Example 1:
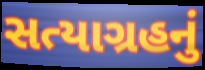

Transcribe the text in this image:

સત્યાગ્રહનું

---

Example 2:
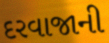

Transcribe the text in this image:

દરવાજાની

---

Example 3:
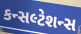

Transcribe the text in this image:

કન્સલ્ટેશન્સ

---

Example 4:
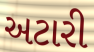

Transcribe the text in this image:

અટારી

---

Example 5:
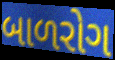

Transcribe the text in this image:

બાળરોગ